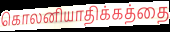
கொலனியாதிக்கத்தை